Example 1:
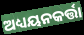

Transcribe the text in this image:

ଅଧ୍ୟୟନକର୍ତ୍ତା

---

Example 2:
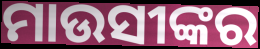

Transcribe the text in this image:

ମାଉସୀଙ୍କର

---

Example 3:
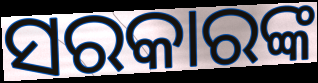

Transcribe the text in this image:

ସରକାରଙ୍କ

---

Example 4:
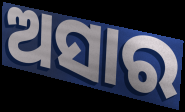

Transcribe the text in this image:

ଅସାର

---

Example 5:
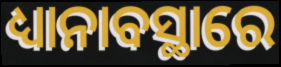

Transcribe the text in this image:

ଧ୍ୟାନାବସ୍ଥାରେ